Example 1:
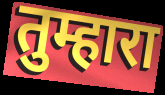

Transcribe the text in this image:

तुम्हारा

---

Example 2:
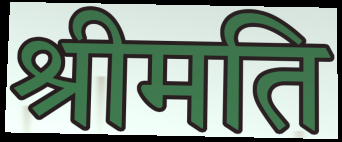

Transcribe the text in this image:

श्रीमति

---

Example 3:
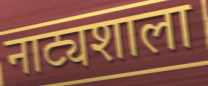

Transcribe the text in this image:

नाट्यशाला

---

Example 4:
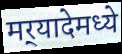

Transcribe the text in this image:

मर्यादेमध्ये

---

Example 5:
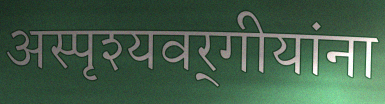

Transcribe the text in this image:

अस्पृश्यवर्गीयांना